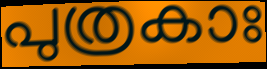
പുത്രകാഃ